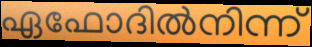
ഏഫോദിൽനിന്ന്